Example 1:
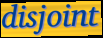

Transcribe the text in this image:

disjoint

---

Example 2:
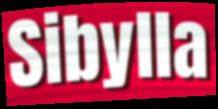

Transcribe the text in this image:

Sibylla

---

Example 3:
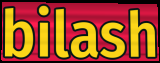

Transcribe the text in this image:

bilash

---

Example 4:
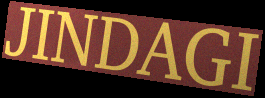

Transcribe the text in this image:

JINDAGI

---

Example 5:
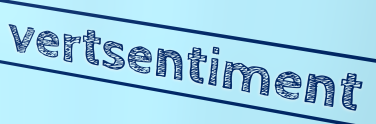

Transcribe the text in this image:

vertsentiment